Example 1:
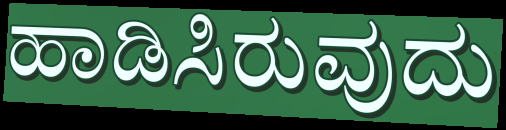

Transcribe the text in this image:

ಹಾಡಿಸಿರುವುದು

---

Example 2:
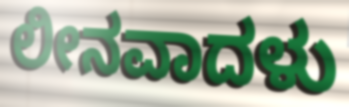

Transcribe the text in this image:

ಲೀನವಾದಳು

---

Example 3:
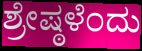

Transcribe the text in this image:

ಶ್ರೇಷ್ಠಳೆಂದು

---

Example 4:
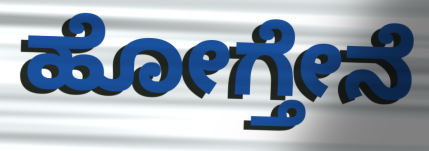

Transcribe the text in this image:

ಹೋಗ್ತೇನೆ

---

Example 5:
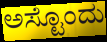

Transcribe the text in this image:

ಅಸ್ಟೊಂದು